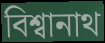
বিশ্বানাথ